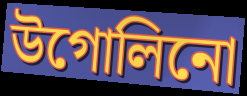
উগোলিনো